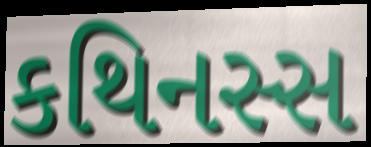
કથિનસ્સ